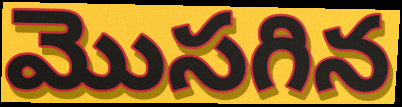
మొసగిన